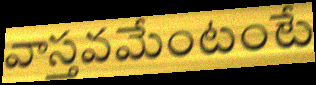
వాస్తవమేంటంటే